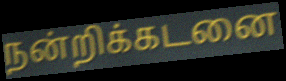
நன்றிக்கடனை